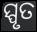
ସ୍ପୃତ